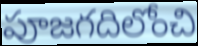
పూజగదిలోంచి